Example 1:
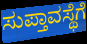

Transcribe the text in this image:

ಸುಪ್ತಾವಸ್ಥೆಗೆ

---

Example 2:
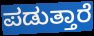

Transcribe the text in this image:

ಪಡುತ್ತಾರೆ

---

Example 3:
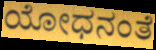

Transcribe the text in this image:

ಯೋಧನಂತೆ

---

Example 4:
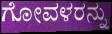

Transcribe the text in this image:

ಗೋವಳರನ್ನು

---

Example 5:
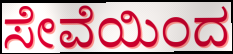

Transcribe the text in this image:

ಸೇವೆಯಿಂದ